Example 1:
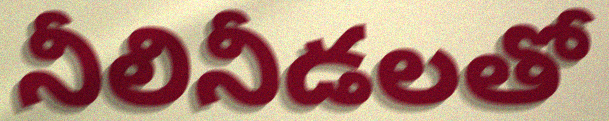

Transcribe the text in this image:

నీలినీడలతో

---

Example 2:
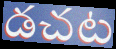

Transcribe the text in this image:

డచట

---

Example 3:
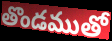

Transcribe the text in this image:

తొండముతో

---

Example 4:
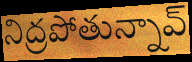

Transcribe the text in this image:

నిద్రపోతున్నావ్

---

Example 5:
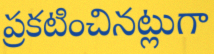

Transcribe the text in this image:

ప్రకటించినట్లుగా